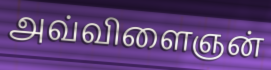
அவ்விளைஞன்